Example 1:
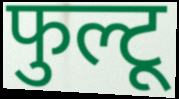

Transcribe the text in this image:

फुल्टू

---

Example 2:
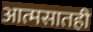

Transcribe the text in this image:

आत्मसातही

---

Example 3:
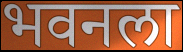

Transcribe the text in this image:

भवनला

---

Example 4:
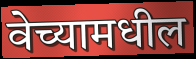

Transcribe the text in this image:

वेच्यामधील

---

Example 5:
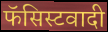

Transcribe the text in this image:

फॅसिस्टवादी